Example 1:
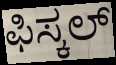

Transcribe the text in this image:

ಫಿಸ್ಕಲ್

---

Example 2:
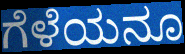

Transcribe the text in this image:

ಗೆಳೆಯನೂ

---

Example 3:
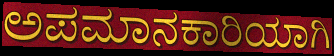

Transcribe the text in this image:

ಅಪಮಾನಕಾರಿಯಾಗಿ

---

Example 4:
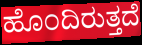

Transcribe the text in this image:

ಹೊಂದಿರುತ್ತದೆ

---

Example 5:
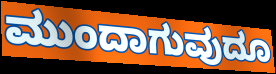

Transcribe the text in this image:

ಮುಂದಾಗುವುದೂ